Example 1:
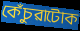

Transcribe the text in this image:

কেঁচুৱাটোক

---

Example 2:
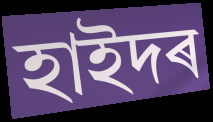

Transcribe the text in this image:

হাইদৰ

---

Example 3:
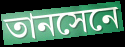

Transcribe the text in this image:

তানসেনে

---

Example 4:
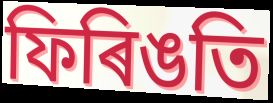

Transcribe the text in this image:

ফিৰিঙতি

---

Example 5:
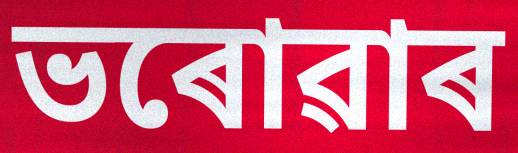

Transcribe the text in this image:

ভৰোৱাৰ